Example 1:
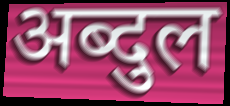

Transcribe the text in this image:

अब्दुल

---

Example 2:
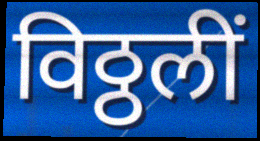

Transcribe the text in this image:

विठ्ठलीं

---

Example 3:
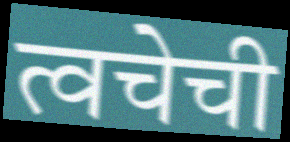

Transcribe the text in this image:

त्वचेची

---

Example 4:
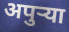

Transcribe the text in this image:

अपुर्‍या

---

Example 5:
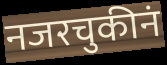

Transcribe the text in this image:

नजरचुकीनं